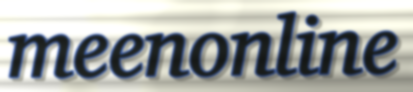
meenonline